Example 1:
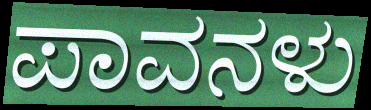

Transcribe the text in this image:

ಪಾವನಳು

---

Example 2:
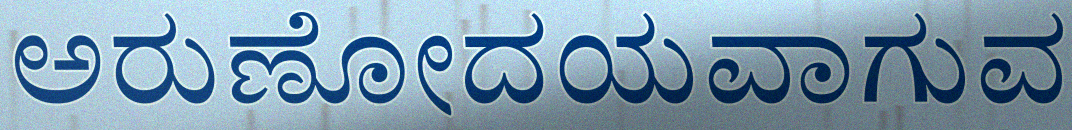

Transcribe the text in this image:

ಅರುಣೋದಯವಾಗುವ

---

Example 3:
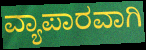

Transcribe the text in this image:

ವ್ಯಾಪಾರವಾಗಿ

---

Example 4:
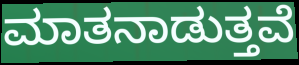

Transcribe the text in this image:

ಮಾತನಾಡುತ್ತವೆ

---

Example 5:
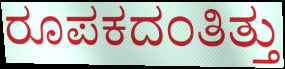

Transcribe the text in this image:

ರೂಪಕದಂತಿತ್ತು